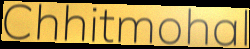
Chhitmohal